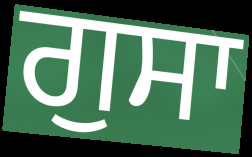
ਗੁਸਾ